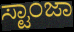
ಸ್ಟಾಂಜಾ